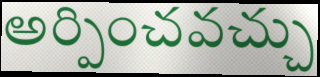
అర్పించవచ్చు